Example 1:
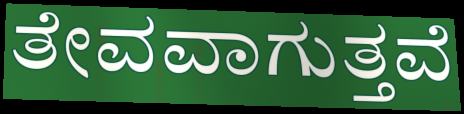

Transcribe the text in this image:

ತೇವವಾಗುತ್ತವೆ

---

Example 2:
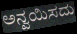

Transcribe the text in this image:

ಅನ್ವಯಿಸದು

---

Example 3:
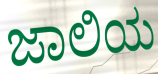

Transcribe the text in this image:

ಜಾಲಿಯ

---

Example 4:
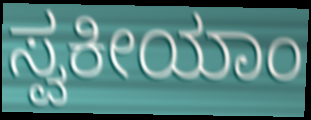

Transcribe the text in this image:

ಸ್ವಕೀಯಾಂ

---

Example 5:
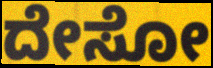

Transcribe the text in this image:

ದೇಸೋ